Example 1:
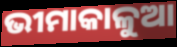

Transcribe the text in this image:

ଭୀମାକାଳୁଆ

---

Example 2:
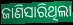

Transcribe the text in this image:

ଜାଣିସାରିଥିଲା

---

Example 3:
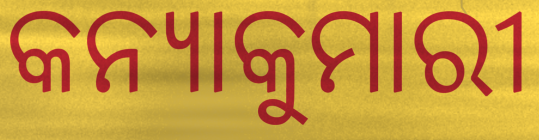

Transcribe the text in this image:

କନ୍ୟାକୁମାରୀ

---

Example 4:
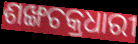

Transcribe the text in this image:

ଶଙ୍ଖଚକ୍ରଧାରୀ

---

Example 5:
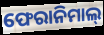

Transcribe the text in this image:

ଫେରାନିମାଲ୍